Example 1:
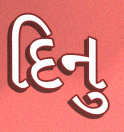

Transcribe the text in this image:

દિનુ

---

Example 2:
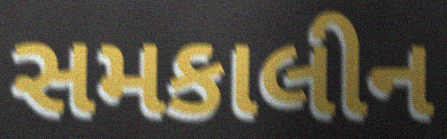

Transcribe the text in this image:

સમકાલીન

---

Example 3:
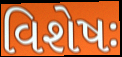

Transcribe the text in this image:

વિશેષઃ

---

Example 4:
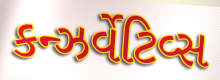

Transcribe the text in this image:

કન્ઝર્વેટિવ્સ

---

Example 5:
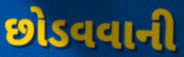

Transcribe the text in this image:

છોડવવાની